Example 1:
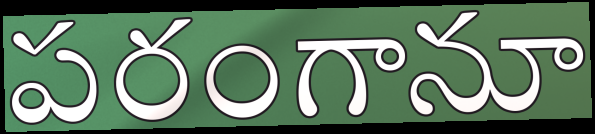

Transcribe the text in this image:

పరంగానూ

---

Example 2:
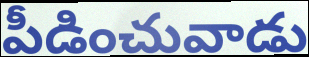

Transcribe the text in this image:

పీడించువాడు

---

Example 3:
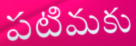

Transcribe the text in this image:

పటిమకు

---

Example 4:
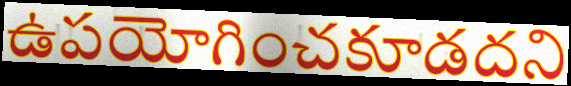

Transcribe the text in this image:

ఉపయోగించకూడదని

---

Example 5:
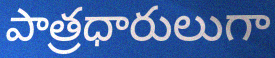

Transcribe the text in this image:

పాత్రధారులుగా